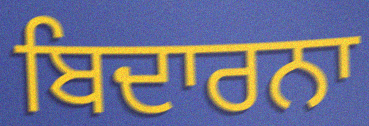
ਬਿਦਾਰਨਾ